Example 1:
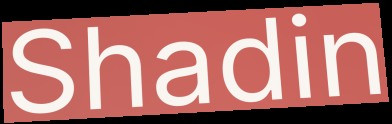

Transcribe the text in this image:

Shadin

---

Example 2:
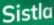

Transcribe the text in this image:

Sistla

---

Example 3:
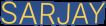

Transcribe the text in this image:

SARJAY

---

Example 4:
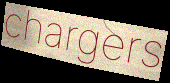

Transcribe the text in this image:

chargers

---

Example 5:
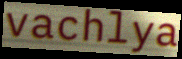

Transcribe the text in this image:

vachlya